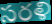
సరళి